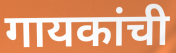
गायकांची